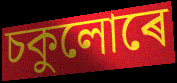
চকুলোৰে